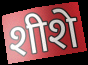
शीशे